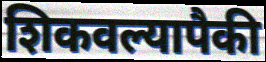
शिकवल्यापैकी